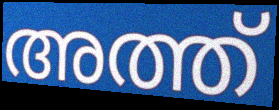
അത്ത്